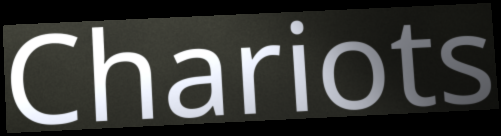
Chariots